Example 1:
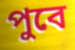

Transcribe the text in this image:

পুবে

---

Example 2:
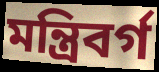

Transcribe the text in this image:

মন্ত্রিবর্গ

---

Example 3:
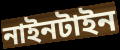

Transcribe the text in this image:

নাইনটাইন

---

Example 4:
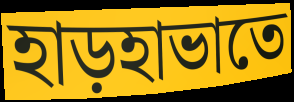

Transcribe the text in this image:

হাড়হাভাতে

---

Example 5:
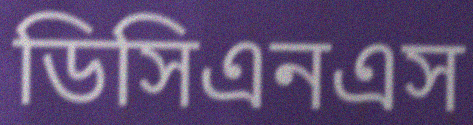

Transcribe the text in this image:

ডিসিএনএস